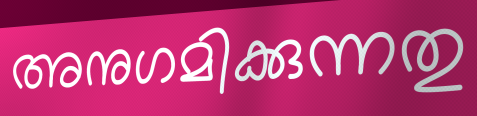
അനുഗമിക്കുന്നതു